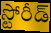
స్టోరీడ్